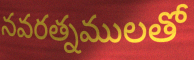
నవరత్నములతో